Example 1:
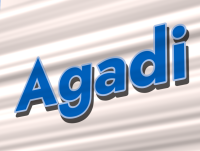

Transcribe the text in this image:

Agadi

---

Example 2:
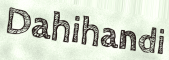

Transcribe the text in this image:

Dahihandi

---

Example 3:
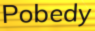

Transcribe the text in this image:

Pobedy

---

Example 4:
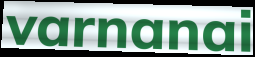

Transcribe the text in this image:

varnanai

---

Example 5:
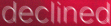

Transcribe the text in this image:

declined